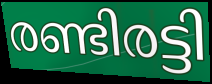
രണ്ടിരട്ടി